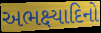
અભક્ષ્યાદિનો